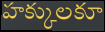
హక్కులకూ